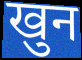
खुन